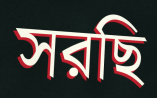
সরছি